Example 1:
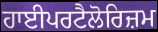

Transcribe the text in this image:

ਹਾਈਪਰਟੈਲੋਰਿਜ਼ਮ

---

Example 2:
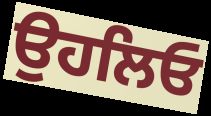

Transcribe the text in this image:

ਉਹਲਿਓ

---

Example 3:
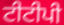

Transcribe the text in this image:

ਟੀਟੀਪੀ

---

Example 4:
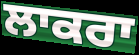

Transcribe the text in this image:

ਲਾਕਰਾ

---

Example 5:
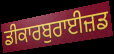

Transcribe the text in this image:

ਡੀਕਾਰਬੁਰਾਈਜ਼ਡ